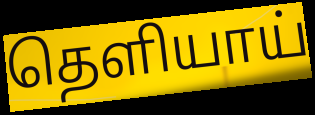
தெளியாய்